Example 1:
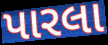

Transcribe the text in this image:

પારલા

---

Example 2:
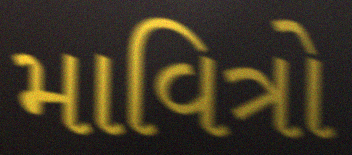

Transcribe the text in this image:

માવિત્રો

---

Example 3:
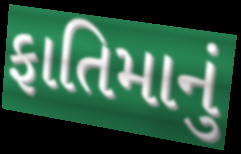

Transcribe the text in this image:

ફાતિમાનું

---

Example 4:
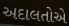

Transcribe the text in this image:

અદાલતોએ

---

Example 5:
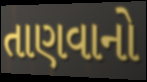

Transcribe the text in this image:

તાણવાનો